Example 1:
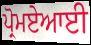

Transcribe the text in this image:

ਪ੍ਰੋਮਏਆਈ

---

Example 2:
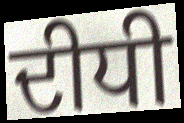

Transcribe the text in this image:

ਦੀਧੀ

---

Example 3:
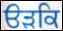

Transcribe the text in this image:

ੳੜਕਿ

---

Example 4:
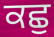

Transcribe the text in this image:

ਕਛੁ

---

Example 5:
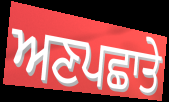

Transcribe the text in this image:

ਅਣਪਛਾਤੇ